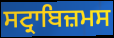
ਸਟ੍ਰਾਬਿਜ਼ਮਸ